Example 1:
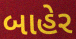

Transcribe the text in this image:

બાહેર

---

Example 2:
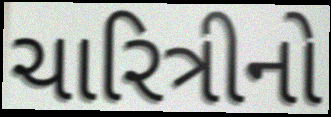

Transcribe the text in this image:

ચારિત્રીનો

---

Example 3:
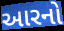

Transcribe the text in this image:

આરનો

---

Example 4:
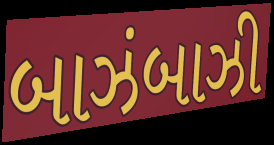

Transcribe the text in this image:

બાઝંબાઝી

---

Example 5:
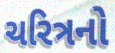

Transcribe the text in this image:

ચરિત્રનો